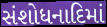
સંશોધનાદિમાં